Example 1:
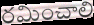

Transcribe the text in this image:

రమించాలి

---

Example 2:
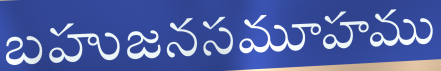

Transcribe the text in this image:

బహుజనసమూహము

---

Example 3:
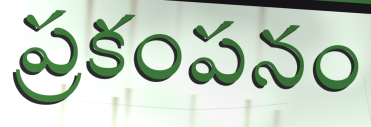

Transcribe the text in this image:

ప్రకంపనం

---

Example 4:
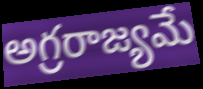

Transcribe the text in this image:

అగ్రరాజ్యమే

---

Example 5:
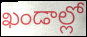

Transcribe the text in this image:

ఖండాల్లో